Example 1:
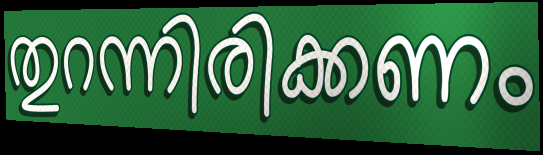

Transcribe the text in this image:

തുറന്നിരിക്കണം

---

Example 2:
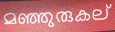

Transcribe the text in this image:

മഞ്ഞുരുകല്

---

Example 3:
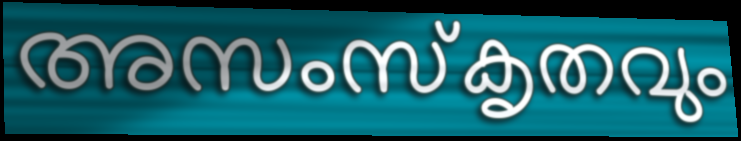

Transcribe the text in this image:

അസംസ്കൃതവും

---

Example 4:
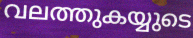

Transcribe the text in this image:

വലത്തുകയ്യുടെ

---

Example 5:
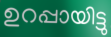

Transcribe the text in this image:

ഉറപ്പായിട്ടു